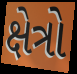
ક્ષેત્રો